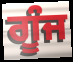
ਗੂੰਜ